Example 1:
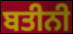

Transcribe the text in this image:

ਬਤੀਨੀ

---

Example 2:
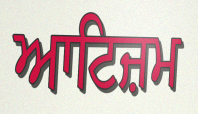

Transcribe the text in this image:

ਆਟਿਜ਼ਮ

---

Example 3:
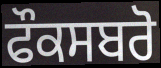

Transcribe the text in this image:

ਫੌਕਸਬਰੋ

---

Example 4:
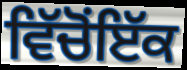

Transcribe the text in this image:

ਵਿੱਚੋਂਇੱਕ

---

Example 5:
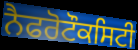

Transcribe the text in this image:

ਨੈਫਰੋਟੌਕਸਿਟੀ